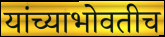
यांच्याभोवतीच